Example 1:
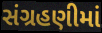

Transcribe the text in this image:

સંગ્રહણીમાં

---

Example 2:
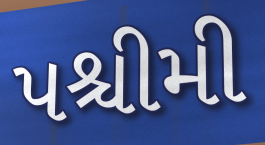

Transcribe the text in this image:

પશ્ચીમી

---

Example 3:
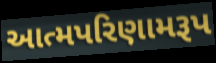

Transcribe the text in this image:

આત્મપરિણામરૂપ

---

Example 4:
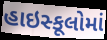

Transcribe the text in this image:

હાઇસ્કૂલોમાં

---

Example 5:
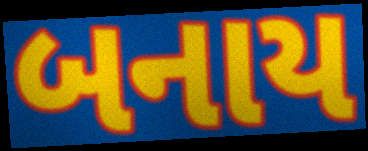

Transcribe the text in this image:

બનાય